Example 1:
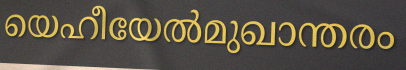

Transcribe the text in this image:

യെഹീയേൽമുഖാന്തരം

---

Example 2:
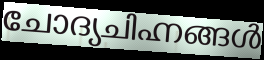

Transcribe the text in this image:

ചോദ്യചിഹ്നങ്ങൾ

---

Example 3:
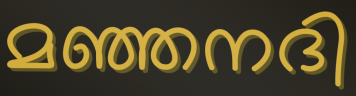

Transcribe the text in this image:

മഞ്ഞനദി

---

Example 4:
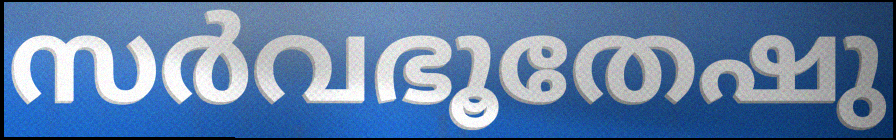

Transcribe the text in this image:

സർവഭൂതേഷു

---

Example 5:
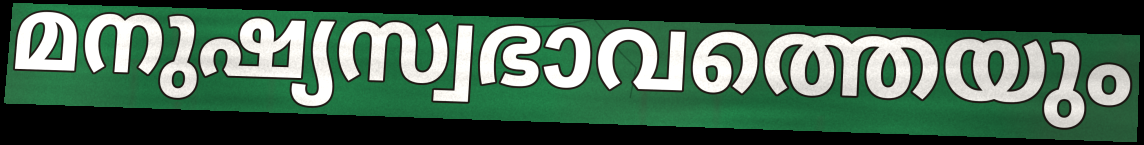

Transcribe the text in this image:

മനുഷ്യസ്വഭാവത്തെയും